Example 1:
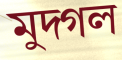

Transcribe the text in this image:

মুদ্গল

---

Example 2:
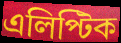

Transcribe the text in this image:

এলিপ্টিক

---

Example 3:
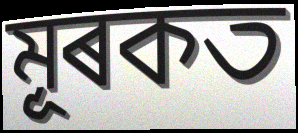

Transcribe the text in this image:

মূৰকত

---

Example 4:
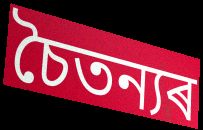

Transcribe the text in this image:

চৈতন্যৰ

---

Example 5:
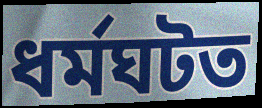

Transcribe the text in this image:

ধৰ্মঘটত